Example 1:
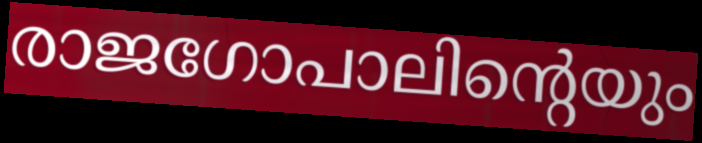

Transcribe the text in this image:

രാജഗോപാലിന്റെയും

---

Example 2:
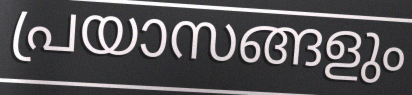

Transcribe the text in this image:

പ്രയാസങ്ങളും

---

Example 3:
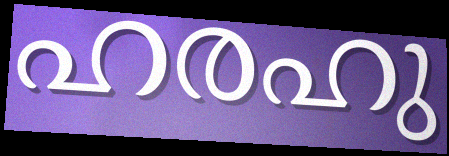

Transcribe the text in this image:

ഹരഹു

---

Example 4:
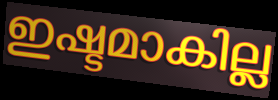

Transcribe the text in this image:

ഇഷ്ടമാകില്ല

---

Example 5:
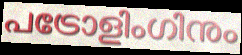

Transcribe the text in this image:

പട്രോളിംഗിനും